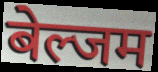
बेल्जम